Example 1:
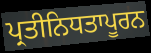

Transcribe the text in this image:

ਪ੍ਰਤੀਨਿਧਤਾਪੂਰਨ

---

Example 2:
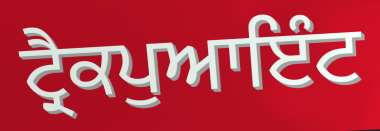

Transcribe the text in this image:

ਟ੍ਰੈਕਪੁਆਇੰਟ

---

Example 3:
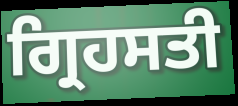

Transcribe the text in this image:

ਗ੍ਰਿਹਸਤੀ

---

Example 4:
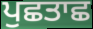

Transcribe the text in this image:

ਪੁਛਤਾਛ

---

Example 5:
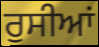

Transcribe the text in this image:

ਰੁਸੀਆਂ